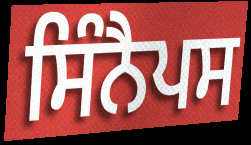
ਸਿੰਨੈਪਸ